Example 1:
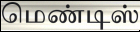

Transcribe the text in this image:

மெண்டிஸ்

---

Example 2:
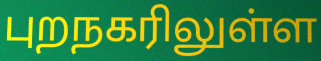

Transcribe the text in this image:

புறநகரிலுள்ள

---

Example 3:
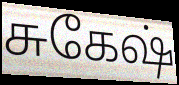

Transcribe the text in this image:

சுகேஷ்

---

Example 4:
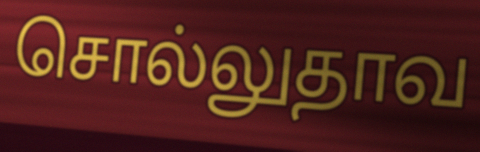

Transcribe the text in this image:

சொல்லுதாவ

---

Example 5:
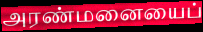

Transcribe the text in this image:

அரண்மனையைப்